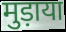
मुड़ाया